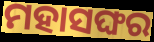
ମହାସଙ୍ଘର